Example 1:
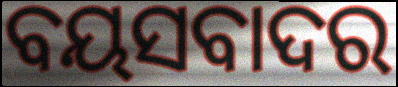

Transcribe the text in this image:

ବୟସବାଦର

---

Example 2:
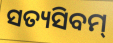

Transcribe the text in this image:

ସତ୍ୟସିବମ୍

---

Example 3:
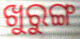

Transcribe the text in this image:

ଖୁରୁଙ୍ଗ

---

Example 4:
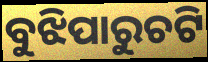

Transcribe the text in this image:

ବୁଝିପାରୁଚଟି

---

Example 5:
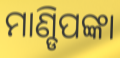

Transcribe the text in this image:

ମାଣ୍ଡିପଙ୍କା